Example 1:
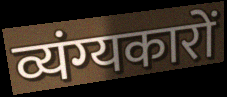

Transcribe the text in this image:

व्‍यंग्‍यकारों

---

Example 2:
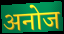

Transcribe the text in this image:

अनोज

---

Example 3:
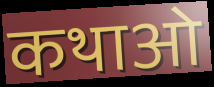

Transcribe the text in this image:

कथाओ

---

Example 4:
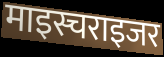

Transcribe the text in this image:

माइस्चराइजर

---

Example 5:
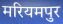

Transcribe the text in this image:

मरियमपुर